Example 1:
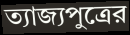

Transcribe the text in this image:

ত্যাজ্যপুত্রের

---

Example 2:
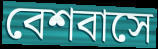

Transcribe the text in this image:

বেশবাসে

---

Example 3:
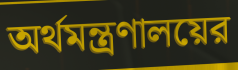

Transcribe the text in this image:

অর্থমন্ত্রণালয়ের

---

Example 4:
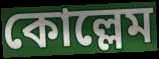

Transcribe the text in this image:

কোল্লেম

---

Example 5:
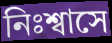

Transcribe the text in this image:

নিঃশ্বাসে